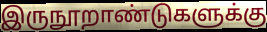
இருநூறாண்டுகளுக்கு